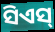
ସିଏସ୍